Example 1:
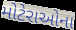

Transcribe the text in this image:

મોટેરાઓના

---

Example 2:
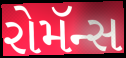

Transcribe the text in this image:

રોમૅન્સ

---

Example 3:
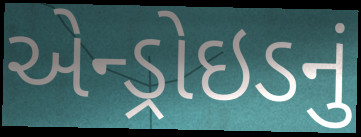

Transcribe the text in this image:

એન્ડ્રોઇડનું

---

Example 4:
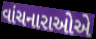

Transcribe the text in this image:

વાંચનારાઓએ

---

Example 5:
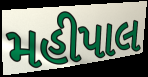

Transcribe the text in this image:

મહીપાલ